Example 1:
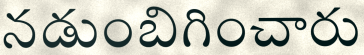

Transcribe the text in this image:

నడుంబిగించారు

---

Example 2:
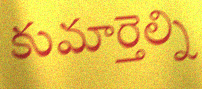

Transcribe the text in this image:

కుమార్తెల్ని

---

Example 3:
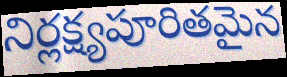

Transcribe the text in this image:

నిర్లక్ష్యపూరితమైన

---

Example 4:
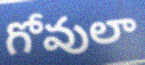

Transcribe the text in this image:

గోవులా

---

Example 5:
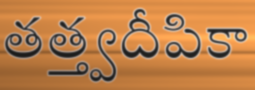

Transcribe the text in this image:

తత్త్వదీపికా